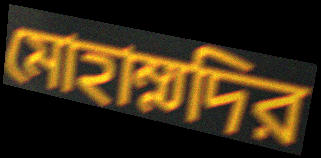
মোহাম্মদির